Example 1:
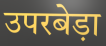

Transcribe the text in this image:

उपरबेड़ा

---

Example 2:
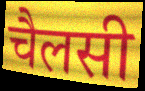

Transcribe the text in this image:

चैलसी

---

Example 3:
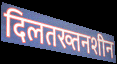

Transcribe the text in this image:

दिलतख्तनशीन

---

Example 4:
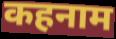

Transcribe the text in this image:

कहनाम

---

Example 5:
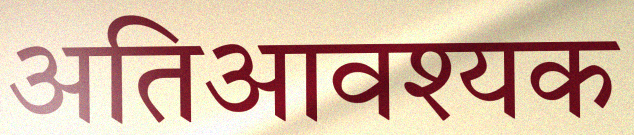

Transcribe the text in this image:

अतिआवश्यक